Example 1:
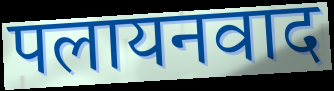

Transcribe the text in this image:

पलायनवाद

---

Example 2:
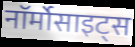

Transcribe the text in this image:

नॉर्मोसाइट्स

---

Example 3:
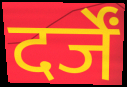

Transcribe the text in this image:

दर्जें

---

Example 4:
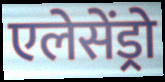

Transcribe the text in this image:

एलेसेंड्रो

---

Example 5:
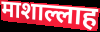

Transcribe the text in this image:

माशाल्लाह